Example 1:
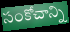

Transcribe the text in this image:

సంకోచాన్ని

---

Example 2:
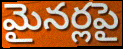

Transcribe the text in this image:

మైనర్లపై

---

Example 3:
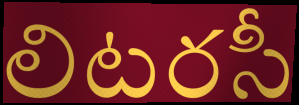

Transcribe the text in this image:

లిటరసీ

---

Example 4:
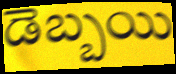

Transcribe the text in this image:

డెబ్బయి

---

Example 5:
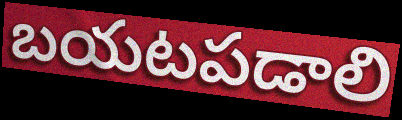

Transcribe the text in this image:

బయటపడాలి